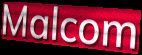
Malcom